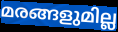
മരങ്ങളുമില്ല